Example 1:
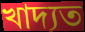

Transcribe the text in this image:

খাদ্যত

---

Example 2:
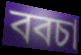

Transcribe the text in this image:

ববচা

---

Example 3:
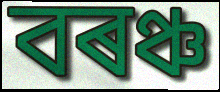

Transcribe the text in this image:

বৰঞ্চ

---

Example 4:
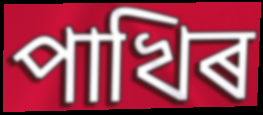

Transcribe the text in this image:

পাখিৰ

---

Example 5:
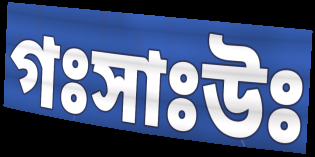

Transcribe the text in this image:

গঃসাঃউঃ